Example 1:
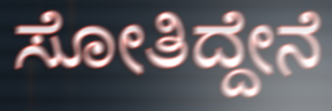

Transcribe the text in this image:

ಸೋತಿದ್ದೇನೆ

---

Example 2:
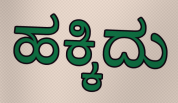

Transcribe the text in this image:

ಹಕ್ಕಿದು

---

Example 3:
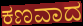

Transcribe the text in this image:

ಕಣವಾದ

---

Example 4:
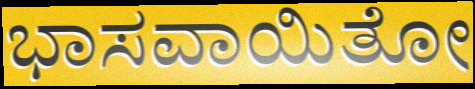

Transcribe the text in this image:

ಭಾಸವಾಯಿತೋ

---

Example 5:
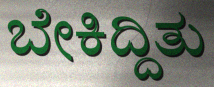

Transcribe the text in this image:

ಬೇಕಿದ್ದಿತು